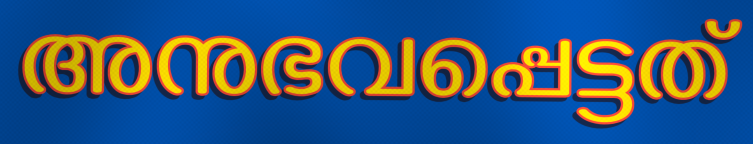
അനുഭവപ്പെട്ടത്